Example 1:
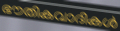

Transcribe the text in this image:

ഭൗതികവാദികൾ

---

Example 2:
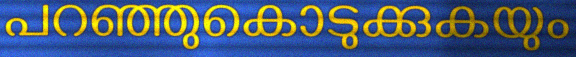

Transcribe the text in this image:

പറഞ്ഞുകൊടുക്കുകയും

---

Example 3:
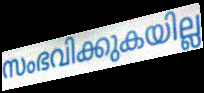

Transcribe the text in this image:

സംഭവിക്കുകയില്ല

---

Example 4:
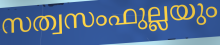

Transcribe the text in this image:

സത്വസംഫുല്ലയും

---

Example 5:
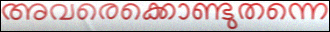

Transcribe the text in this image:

അവരെക്കൊണ്ടുതന്നെ